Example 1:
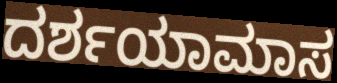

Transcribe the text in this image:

ದರ್ಶಯಾಮಾಸ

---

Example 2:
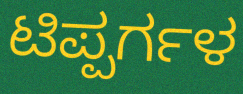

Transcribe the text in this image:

ಟಿಪ್ಪರ್ಗಳ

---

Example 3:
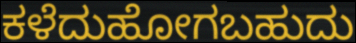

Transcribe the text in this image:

ಕಳೆದುಹೋಗಬಹುದು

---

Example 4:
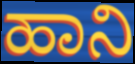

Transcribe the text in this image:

ಹಾನಿ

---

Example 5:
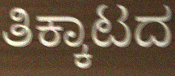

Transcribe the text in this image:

ತಿಕ್ಕಾಟದ